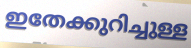
ഇതേക്കുറിച്ചുള്ള